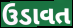
ઉડાવત